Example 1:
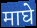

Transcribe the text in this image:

माघे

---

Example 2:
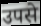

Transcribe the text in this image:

उपसे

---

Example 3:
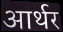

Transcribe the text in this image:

आर्थर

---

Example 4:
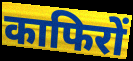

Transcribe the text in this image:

काफिरों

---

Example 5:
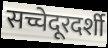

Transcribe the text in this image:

सच्चेदूरदर्शी